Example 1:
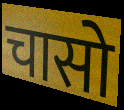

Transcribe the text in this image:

चासो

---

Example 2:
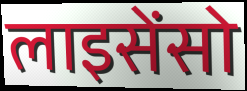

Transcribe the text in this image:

लाइसेंसो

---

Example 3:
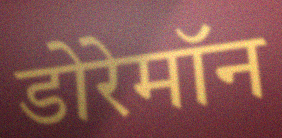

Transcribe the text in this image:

डोरेमॉन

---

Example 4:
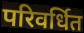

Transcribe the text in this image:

परिवर्धित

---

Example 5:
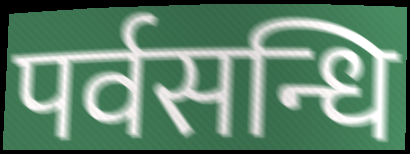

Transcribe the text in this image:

पर्वसन्धि